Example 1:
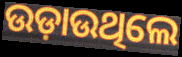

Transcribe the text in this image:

ଉଡ଼ାଉଥିଲେ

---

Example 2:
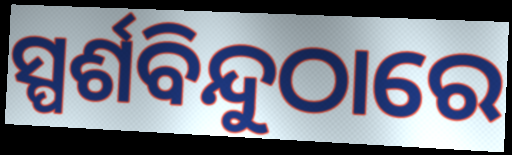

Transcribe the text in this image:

ସ୍ପର୍ଶବିନ୍ଦୁଠାରେ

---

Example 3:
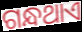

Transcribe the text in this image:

ଗନ୍ଧଥାଏ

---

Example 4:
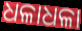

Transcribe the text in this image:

ଧଳାଧଳା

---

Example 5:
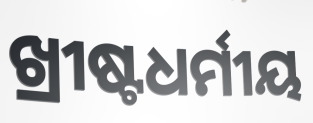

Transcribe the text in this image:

ଖ୍ରୀଷ୍ଟଧର୍ମୀୟ